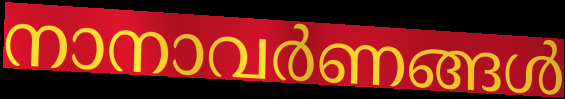
നാനാവർണങ്ങൾ